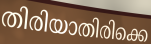
തിരിയാതിരിക്കെ